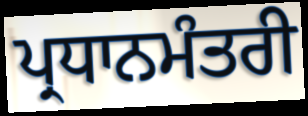
ਪ੍ਰਧਾਨਮੰਤਰੀ